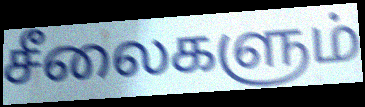
சீலைகளும்